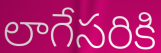
లాగేసరికి